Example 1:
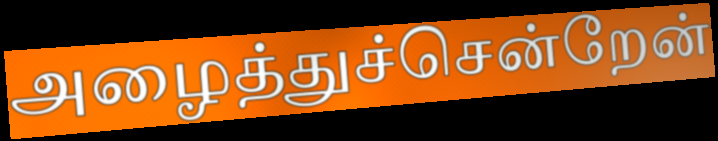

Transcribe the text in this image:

அழைத்துச்சென்றேன்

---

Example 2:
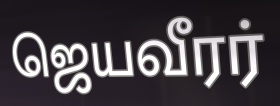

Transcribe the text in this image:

ஜெயவீரர்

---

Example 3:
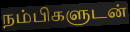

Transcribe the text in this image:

நம்பிகளுடன்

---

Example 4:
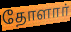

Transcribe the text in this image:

தோளார்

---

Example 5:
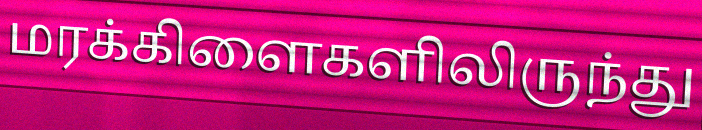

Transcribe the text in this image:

மரக்கிளைகளிலிருந்து